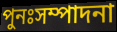
পুনঃসম্পাদনা